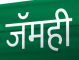
जॅमही